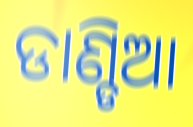
ଡାଣ୍ଡିଆ